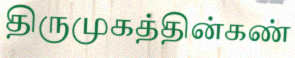
திருமுகத்தின்கண்